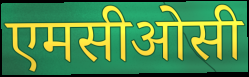
एमसीओसी